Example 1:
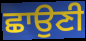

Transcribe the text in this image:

ਛਾਉਣੀ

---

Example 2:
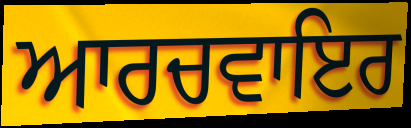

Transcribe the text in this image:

ਆਰਚਵਾਇਰ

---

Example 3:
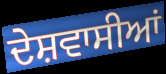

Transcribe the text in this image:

ਦੇਸ਼ਵਾਸੀਆਂ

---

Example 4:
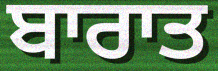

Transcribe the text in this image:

ਬਾਰਾਤ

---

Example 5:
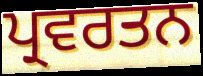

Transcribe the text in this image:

ਪ੍ਰਵਰਤਨ